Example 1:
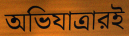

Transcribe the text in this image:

অভিযাত্রারই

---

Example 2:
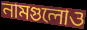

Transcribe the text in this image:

নামগুলোও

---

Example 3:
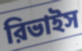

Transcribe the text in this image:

রিভাইস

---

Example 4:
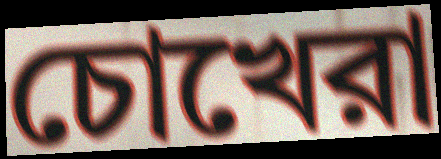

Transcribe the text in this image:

চোখেরা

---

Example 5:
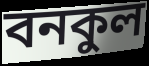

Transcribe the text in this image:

বনকুল